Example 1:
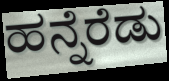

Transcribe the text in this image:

ಹನ್ನೆರೆಡು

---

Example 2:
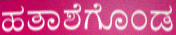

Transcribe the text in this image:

ಹತಾಶೆಗೊಂಡ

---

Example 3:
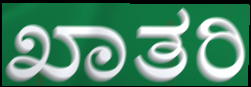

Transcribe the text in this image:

ಖಾತರಿ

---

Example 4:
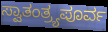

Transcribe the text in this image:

ಸ್ವಾತಂತ್ರ್ಯಪೂರ್ವ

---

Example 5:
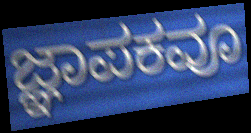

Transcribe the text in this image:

ಜ್ಞಾಪಕವೂ